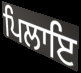
ਪਿਲਾਇ